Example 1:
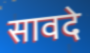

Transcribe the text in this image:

सावदे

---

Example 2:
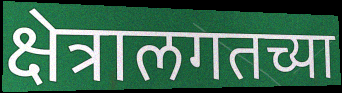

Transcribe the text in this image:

क्षेत्रालगतच्या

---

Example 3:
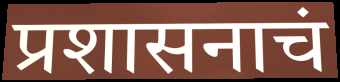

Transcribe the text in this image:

प्रशासनाचं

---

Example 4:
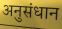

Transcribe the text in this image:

अनुसंधान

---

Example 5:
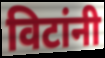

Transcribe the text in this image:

विटांनी